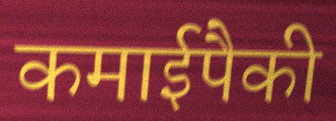
कमाईपैकी